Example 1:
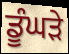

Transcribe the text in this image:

ਡੂੰਘੜੇ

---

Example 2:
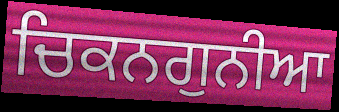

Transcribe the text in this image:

ਚਿਕਨਗੁਨੀਆ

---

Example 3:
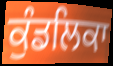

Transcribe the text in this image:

ਕੁੰਡਲਿਕਾ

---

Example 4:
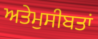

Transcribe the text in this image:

ਅਤੇਮੁਸੀਬਤਾਂ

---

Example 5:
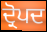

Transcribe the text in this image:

ਦ੍ਰੋਪਦ